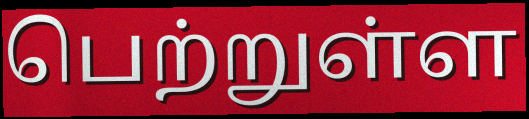
பெற்றுள்ள